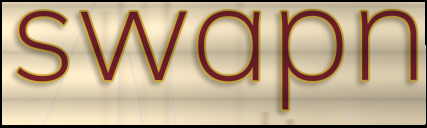
swapn